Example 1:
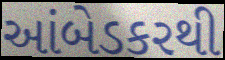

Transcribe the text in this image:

આંબેડકરથી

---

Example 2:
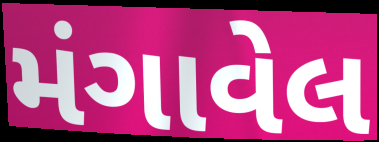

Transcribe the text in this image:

મંગાવેલ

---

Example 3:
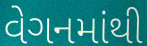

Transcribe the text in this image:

વેગનમાંથી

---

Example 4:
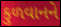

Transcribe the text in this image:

કુળવાનને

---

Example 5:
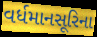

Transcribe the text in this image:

વર્ધમાનસૂરિના